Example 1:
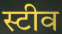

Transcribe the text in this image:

स्टीव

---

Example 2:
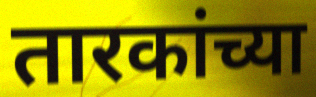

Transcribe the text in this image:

तारकांच्या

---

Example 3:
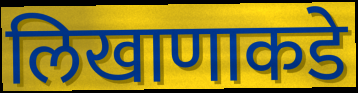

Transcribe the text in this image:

लिखाणाकडे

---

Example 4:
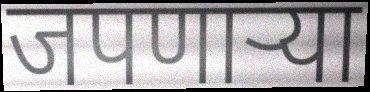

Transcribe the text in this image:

जपणाऱ्या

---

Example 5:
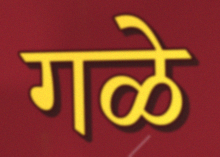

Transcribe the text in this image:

गळे